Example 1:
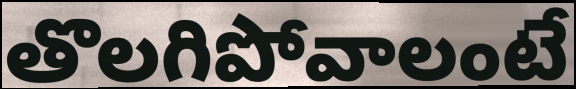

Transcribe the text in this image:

తొలగిపోవాలంటే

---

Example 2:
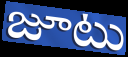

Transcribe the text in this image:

జూటు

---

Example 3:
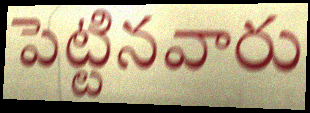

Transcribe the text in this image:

పెట్టినవారు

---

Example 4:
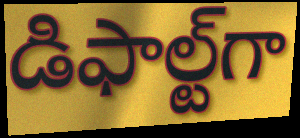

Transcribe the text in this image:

డిఫాల్ట్‌గా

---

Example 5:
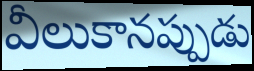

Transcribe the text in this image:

వీలుకానప్పుడు